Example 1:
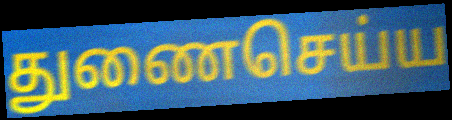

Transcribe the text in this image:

துணைசெய்ய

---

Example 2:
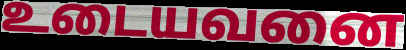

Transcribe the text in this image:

உடையவனை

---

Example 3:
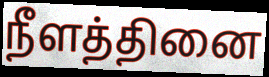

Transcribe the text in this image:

நீளத்தினை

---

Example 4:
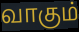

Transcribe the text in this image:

வாகும்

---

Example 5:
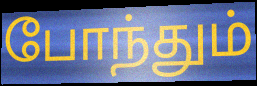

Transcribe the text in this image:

போந்தும்